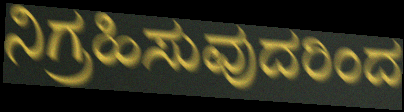
ನಿಗ್ರಹಿಸುವುದರಿಂದ